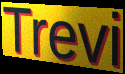
Trevi